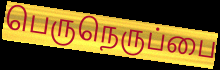
பெருநெருப்பை